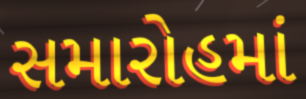
સમારોહમાં